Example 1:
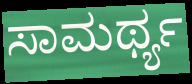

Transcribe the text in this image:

ಸಾಮರ್ಥ್ಯ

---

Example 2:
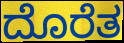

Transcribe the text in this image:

ದೊರೆತ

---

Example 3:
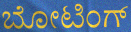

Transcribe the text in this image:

ಬೋಟಿಂಗ್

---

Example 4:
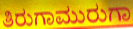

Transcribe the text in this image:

ತಿರುಗಾಮುರುಗಾ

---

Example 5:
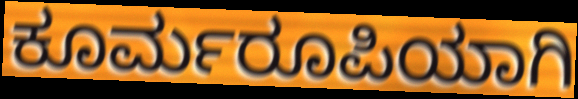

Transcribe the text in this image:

ಕೂರ್ಮರೂಪಿಯಾಗಿ